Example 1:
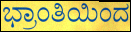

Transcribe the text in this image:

ಭ್ರಾಂತಿಯಿಂದ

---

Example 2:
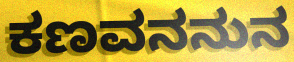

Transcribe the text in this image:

ಕಣವನನುನ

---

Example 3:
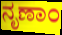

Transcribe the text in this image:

ನೃಣಾಂ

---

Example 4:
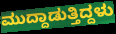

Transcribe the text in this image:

ಮುದ್ದಾಡುತ್ತಿದ್ದಳು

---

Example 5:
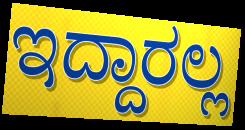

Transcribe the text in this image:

ಇದ್ದಾರಲ್ಲ